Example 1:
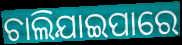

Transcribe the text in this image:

ଚାଲିଯାଇପାରେ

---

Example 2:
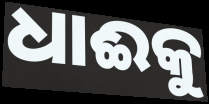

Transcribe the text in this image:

ଧାଈକୁ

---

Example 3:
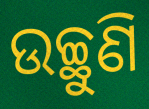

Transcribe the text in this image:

ଉଚ୍ଛୁଣି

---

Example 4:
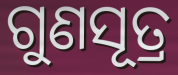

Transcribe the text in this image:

ଗୁଣସୂତ୍ର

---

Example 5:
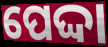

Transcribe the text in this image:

ପେଦ୍ଦା